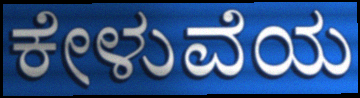
ಕೇಳುವೆಯ